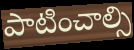
పాటించాల్సి